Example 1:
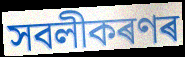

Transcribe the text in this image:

সবলীকৰণৰ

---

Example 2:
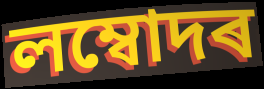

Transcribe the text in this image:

লম্বোদৰ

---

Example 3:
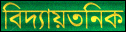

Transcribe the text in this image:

বিদ্যায়তনিক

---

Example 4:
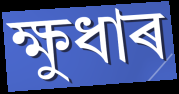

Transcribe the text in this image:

ক্ষুধাৰ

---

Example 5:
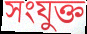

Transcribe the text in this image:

সংযুক্ত